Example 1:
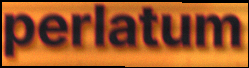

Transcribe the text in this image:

perlatum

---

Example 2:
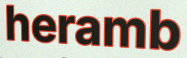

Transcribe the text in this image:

heramb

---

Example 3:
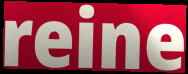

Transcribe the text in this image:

reine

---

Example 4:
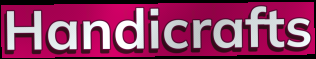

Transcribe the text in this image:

Handicrafts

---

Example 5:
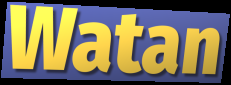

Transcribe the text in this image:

Watan